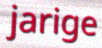
jarige